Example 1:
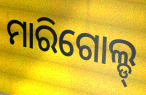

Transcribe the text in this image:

ମାରିଗୋଲ୍ଡ୍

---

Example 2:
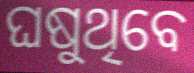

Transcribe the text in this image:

ଘଷୁଥିବେ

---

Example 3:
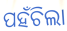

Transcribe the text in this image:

ପହଁଚିଲା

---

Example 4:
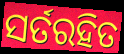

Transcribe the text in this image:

ସର୍ତରହିତ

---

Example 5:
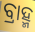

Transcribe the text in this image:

ବ୍ରାହ୍ମ